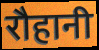
रौहानी